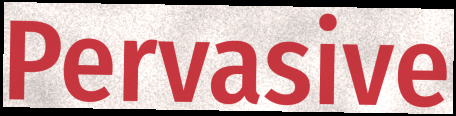
Pervasive